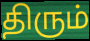
திரும்